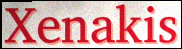
Xenakis